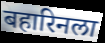
बहारिनला